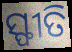
ସ୍ଫୀତି